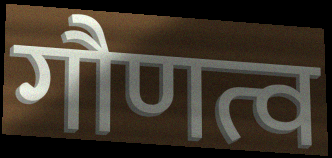
गौणत्व